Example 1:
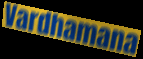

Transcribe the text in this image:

Vardhamana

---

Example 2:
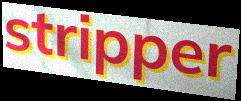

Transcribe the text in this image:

stripper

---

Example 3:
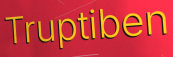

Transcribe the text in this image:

Truptiben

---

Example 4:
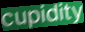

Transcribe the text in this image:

cupidity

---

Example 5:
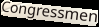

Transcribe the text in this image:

Congressmen